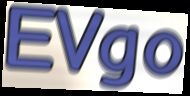
EVgo